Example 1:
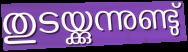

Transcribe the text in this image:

തുടയ്ക്കുന്നുണ്ടു്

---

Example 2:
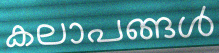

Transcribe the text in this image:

കലാപങ്ങൾ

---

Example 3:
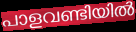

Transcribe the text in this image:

പാളവണ്ടിയിൽ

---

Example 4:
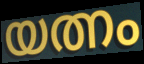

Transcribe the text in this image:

യത്നം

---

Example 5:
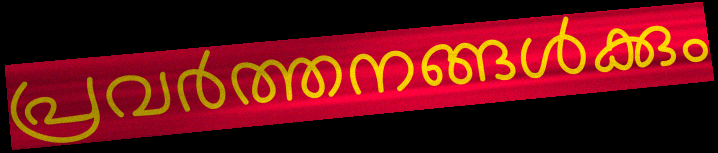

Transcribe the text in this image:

പ്രവർത്തനങ്ങൾക്കും